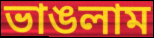
ভাঙলাম